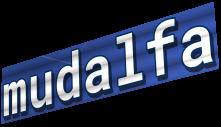
mudalfa